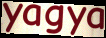
yagya